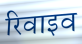
रिवाइव